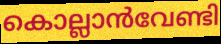
കൊല്ലാൻവേണ്ടി